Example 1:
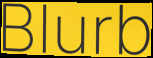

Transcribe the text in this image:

Blurb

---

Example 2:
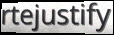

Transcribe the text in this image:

rtejustify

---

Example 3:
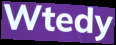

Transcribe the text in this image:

Wtedy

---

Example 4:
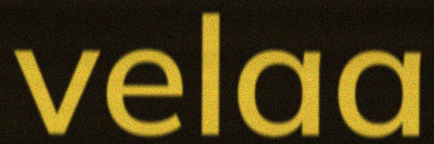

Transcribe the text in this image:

velaa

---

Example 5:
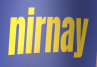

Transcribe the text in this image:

nirnay